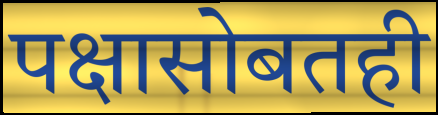
पक्षासोबतही